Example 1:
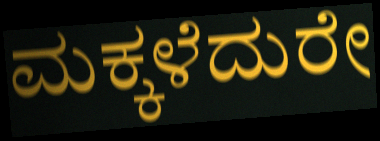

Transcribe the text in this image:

ಮಕ್ಕಳೆದುರೇ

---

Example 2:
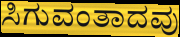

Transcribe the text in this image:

ಸಿಗುವಂತಾದವು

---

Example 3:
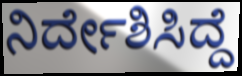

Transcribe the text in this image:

ನಿರ್ದೇಶಿಸಿದ್ದೆ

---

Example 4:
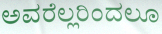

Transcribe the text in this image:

ಅವರೆಲ್ಲರಿಂದಲೂ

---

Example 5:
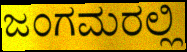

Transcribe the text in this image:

ಜಂಗಮರಲ್ಲಿ